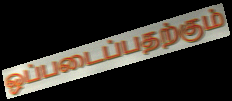
ஒப்படைப்பதற்கும்